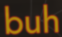
buh